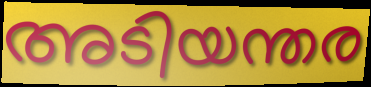
അടിയന്തര